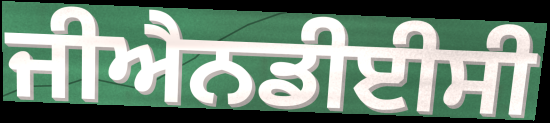
ਜੀਐਨਡੀਈਸੀ